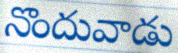
నొందువాడు